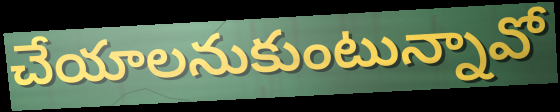
చేయాలనుకుంటున్నావో